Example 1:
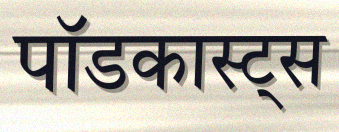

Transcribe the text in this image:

पॉडकास्ट्स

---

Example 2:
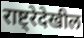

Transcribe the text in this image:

राष्ट्रेदेखील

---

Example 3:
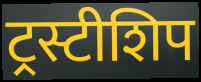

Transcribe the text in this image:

ट्रस्टीशिप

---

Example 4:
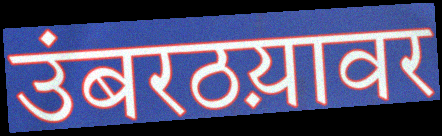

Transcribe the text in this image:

उंबरठय़ावर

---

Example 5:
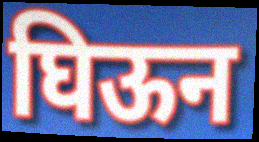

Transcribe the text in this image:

घिऊन